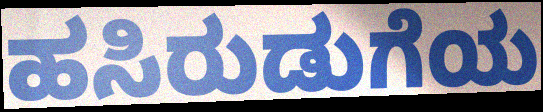
ಹಸಿರುಡುಗೆಯ